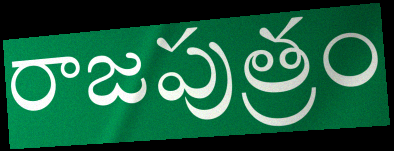
రాజపుత్రం